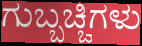
ಗುಬ್ಬಚ್ಚಿಗಳು